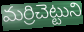
మర్రిచెట్టుని